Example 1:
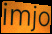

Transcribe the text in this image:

imjo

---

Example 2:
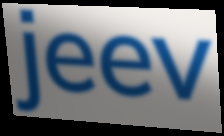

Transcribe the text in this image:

jeev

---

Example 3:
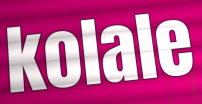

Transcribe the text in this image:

kolale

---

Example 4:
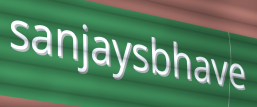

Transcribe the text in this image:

sanjaysbhave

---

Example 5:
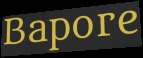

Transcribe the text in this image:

Bapore